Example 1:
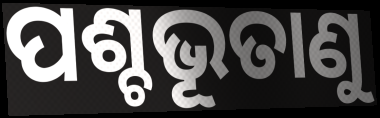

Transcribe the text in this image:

ପଶ୍ଚଭୂତାଣୁ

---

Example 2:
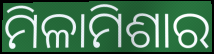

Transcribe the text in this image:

ମିଳାମିଶାର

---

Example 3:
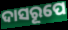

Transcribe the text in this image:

ଦାସରୂପେ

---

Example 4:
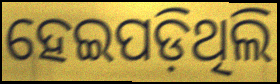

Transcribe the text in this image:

ହେଇପଡ଼ିଥିଲି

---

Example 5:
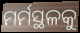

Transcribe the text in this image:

ମର୍ମସ୍ଥଳକୁ